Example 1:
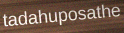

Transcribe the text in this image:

tadahuposathe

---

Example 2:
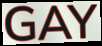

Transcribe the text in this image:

GAY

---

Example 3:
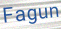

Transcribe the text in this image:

Fagun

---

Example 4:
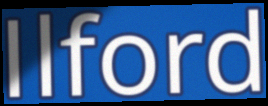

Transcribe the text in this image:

Ilford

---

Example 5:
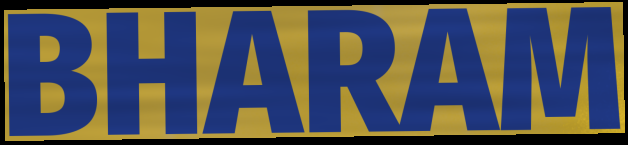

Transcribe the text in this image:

BHARAM